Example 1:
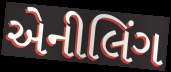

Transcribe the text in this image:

એનીલિંગ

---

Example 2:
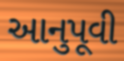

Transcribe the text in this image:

આનુપૂવી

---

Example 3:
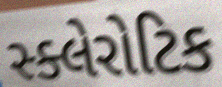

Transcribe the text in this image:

સ્ક્લેરોટિક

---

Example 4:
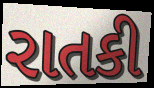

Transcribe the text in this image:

રાતકી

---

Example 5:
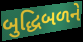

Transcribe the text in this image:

બુદ્ધિબળને